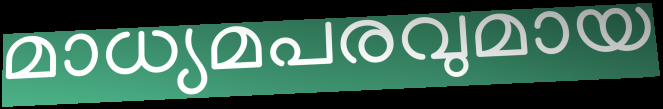
മാധ്യമപരവുമായ